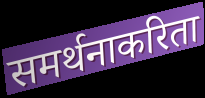
समर्थनाकरिता